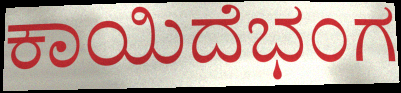
ಕಾಯಿದೆಭಂಗ